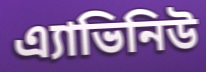
এ্যাভিনিউ